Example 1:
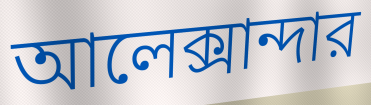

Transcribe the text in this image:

আলেক্সান্দার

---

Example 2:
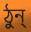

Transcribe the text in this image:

ঠুন্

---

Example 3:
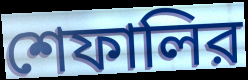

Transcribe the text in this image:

শেফালির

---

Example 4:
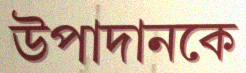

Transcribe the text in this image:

উপাদানকে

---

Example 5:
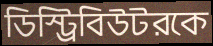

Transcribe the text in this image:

ডিস্ট্রিবিউটরকে